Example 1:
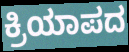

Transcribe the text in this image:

ಕ್ರಿಯಾಪದ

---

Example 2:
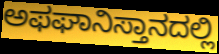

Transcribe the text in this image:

ಅಫಘಾನಿಸ್ತಾನದಲ್ಲಿ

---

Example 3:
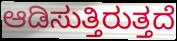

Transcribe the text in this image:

ಆಡಿಸುತ್ತಿರುತ್ತದೆ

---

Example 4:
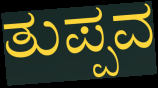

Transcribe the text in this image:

ತುಪ್ಪವ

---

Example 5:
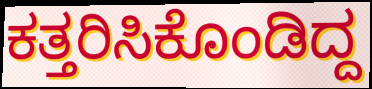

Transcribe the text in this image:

ಕತ್ತರಿಸಿಕೊಂಡಿದ್ದ